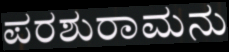
ಪರಶುರಾಮನು